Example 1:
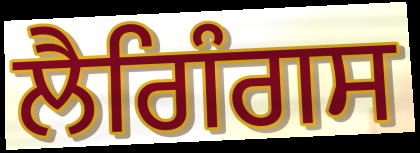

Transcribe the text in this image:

ਲੈਗਿੰਗਸ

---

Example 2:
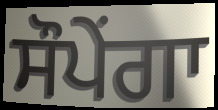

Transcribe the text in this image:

ਸੌਪੇਂਗਾ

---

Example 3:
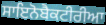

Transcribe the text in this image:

ਸਾਇਨੋਬੈਕਟੀਰੀਆ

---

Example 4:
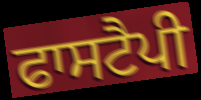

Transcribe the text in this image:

ਫਾਸਟੈਪੀ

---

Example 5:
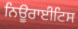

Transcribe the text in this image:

ਨਿਊਰਾਈਟਿਸ